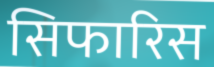
सिफारिस